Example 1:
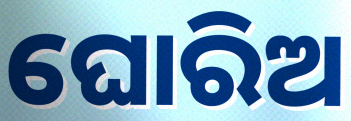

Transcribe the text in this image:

ଘୋରିଅ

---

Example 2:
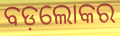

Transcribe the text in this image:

ବଡ଼ଲୋକର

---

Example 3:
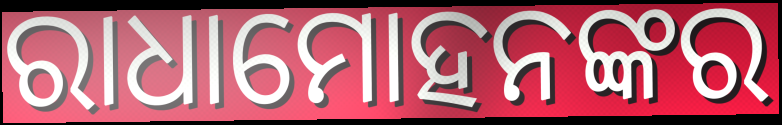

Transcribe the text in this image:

ରାଧାମୋହନଙ୍କର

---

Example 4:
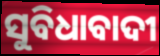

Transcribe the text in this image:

ସୁବିଧାବାଦୀ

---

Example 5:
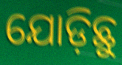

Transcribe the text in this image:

ଯୋଡ଼ିଛୁ